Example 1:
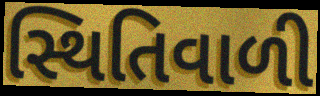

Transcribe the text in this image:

સ્થિતિવાળી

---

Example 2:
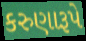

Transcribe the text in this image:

કરુણારૂપે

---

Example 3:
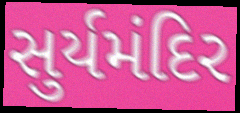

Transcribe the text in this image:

સુર્યમંદિર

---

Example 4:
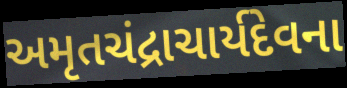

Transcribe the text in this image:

અમૃતચંદ્રાચાર્યદેવના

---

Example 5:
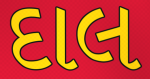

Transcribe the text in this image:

દાલ